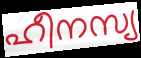
ഹീനസ്യ